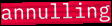
annulling